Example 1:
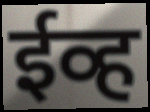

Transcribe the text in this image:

ईव्ह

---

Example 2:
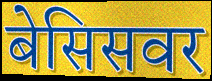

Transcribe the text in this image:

बेसिसवर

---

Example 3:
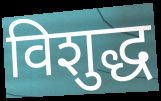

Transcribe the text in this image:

विशुद्ध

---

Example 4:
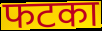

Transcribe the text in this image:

फटका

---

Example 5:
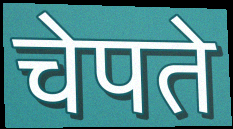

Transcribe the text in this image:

चेपते